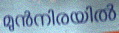
മുൻനിരയിൽ